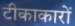
टीकाकारों